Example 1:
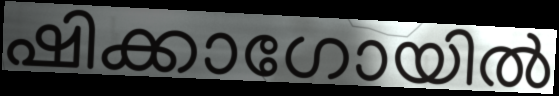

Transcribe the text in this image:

ഷിക്കാഗോയിൽ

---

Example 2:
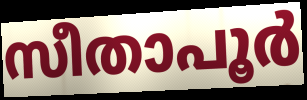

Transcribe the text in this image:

സീതാപൂർ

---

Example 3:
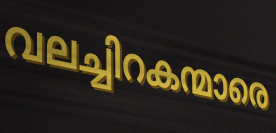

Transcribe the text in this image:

വലച്ചിറകന്മാരെ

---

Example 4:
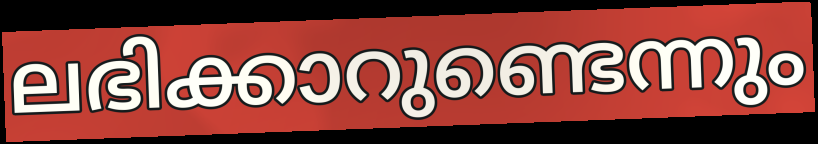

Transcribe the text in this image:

ലഭിക്കാറുണ്ടെന്നും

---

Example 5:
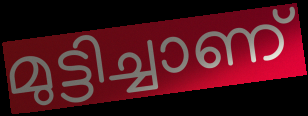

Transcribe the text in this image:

മുട്ടിച്ചാണ്